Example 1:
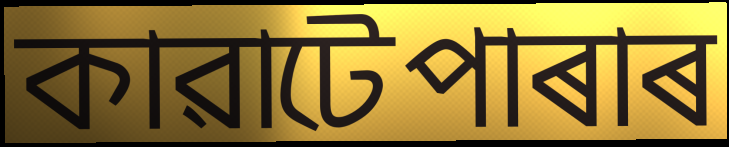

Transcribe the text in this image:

কাৱাটেপাৰাৰ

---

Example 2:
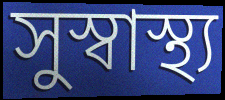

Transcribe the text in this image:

সুস্বাস্থ্য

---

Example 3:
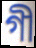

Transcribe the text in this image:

গী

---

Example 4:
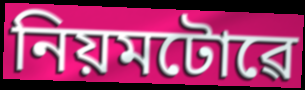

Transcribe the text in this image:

নিয়মটোৱে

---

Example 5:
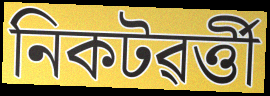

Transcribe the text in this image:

নিকটৱৰ্ত্তী